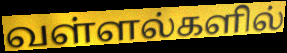
வள்ளல்களில்